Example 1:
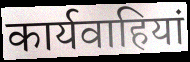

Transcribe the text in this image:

कार्यवाहियां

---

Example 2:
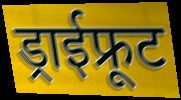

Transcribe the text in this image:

ड्राईफ्रूट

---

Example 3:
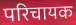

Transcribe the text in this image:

परिचायक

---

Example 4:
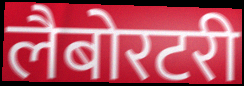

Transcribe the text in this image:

लैबोरटरी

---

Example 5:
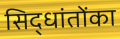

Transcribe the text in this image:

सिद्धांतोंका